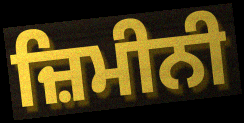
ਜ਼ਿਮੀਨੀ